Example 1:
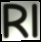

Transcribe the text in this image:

Rl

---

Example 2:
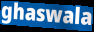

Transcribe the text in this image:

ghaswala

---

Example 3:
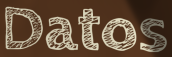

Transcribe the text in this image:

Datos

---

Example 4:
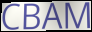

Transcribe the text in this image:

CBAM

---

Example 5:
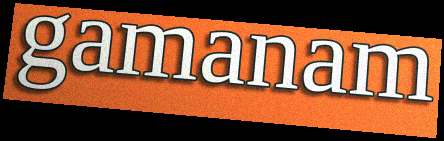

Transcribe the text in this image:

gamanam